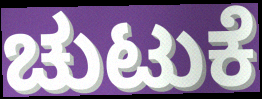
ಚುಟುಕೆ